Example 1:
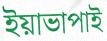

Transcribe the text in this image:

ইয়াভাপাই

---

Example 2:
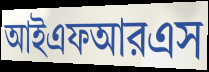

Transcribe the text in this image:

আইএফআরএস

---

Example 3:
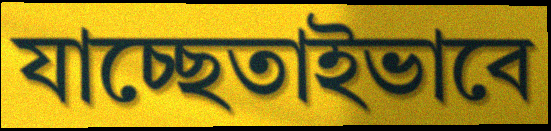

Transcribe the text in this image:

যাচ্ছেতাইভাবে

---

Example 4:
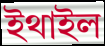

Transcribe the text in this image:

ইথাইল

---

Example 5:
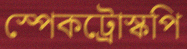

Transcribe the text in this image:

স্পেকট্রোস্কপি